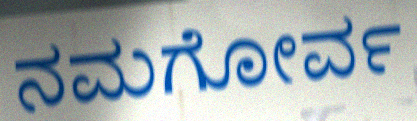
ನಮಗೋರ್ವ